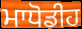
ਮਾਧੋਡੀਹ